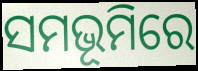
ସମଭୂମିରେ